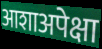
आशाअपेक्षा